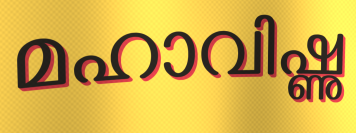
മഹാവിഷ്ണു